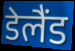
डेलैंड